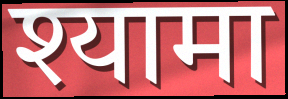
श्‍यामा